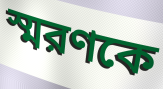
স্মরণকে